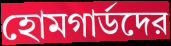
হোমগার্ডদের